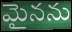
మైనను